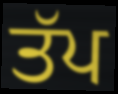
ਤੱਪ